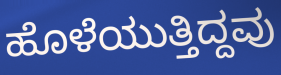
ಹೊಳೆಯುತ್ತಿದ್ದವು